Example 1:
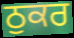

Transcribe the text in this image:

ਠੁਕਰ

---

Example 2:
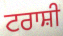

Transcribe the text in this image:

ਟਰਾਸ਼ੀ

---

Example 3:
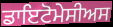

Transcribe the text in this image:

ਡਾਇਟੋਮੇਸੀਅਸ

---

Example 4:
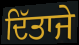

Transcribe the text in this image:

ਦਿੱਤਾਜੇ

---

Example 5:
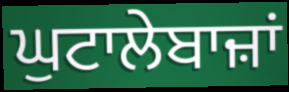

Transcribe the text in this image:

ਘੁਟਾਲੇਬਾਜ਼ਾਂ